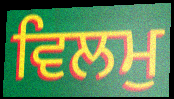
ਵਿਲਮੁ